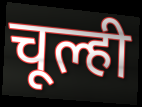
चूल्ही